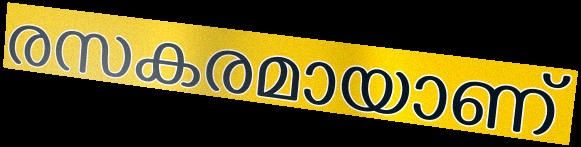
രസകരമായാണ്